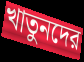
খাতুনদের